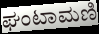
ಘಂಟಾಮಣಿ